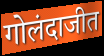
गोलंदाजीत